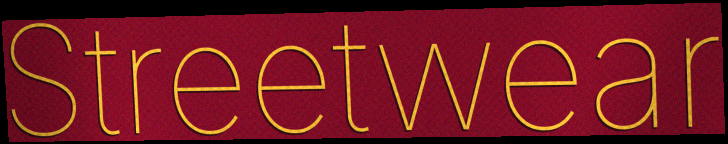
Streetwear